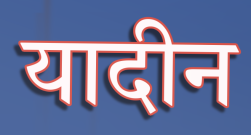
यादीन